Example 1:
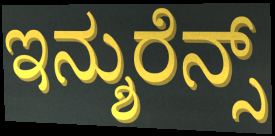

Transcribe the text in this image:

ಇನ್ಶುರೆನ್ಸ್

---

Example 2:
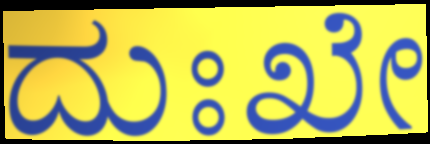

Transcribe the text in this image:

ದುಃಖೇ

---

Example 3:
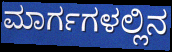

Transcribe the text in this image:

ಮಾರ್ಗಗಳಲ್ಲಿನ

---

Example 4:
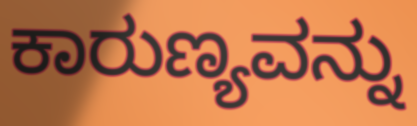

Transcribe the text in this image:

ಕಾರುಣ್ಯವನ್ನು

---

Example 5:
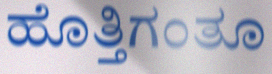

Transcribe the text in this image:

ಹೊತ್ತಿಗಂತೂ